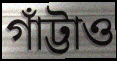
গাঁট্টাও